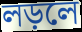
লড়লে